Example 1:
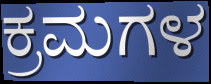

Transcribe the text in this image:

ಕ್ರಮಗಳ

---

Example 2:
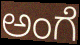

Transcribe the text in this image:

ಅಂಗೆ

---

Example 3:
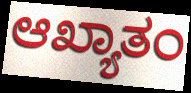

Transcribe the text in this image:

ಆಖ್ಯಾತಂ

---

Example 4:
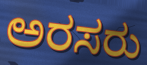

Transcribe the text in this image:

ಅರಸರು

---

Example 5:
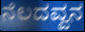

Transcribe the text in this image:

ನೆಲದವ್ವನ